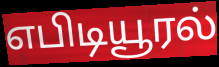
எபிடியூரல்